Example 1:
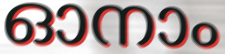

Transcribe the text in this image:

ഓനാം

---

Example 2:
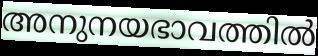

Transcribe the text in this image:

അനുനയഭാവത്തിൽ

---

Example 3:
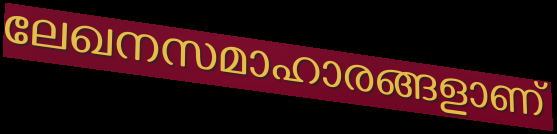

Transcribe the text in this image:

ലേഖനസമാഹാരങ്ങളാണ്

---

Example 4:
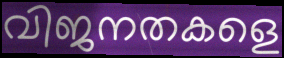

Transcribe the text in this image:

വിജനതകളെ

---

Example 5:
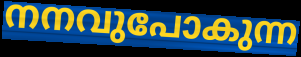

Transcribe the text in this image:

നനവുപോകുന്ന